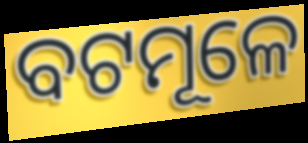
ବଟମୂଳେ